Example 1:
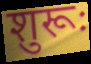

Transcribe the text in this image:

शुरूः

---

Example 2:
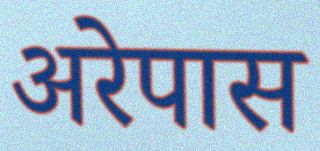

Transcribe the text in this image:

अरेपास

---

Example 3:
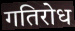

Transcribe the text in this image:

गतिरोध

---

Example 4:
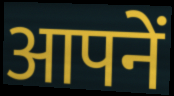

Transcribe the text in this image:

आपनें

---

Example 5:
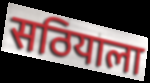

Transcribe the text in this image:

सठियाला